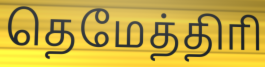
தெமேத்திரி